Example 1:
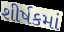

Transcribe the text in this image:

શીર્ષકમાં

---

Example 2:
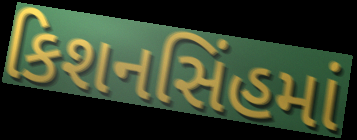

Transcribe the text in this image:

કિશનસિંહમાં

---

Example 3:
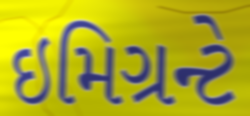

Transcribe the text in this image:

ઇમિગ્રન્ટે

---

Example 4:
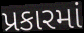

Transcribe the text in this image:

પ્રકારમાં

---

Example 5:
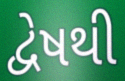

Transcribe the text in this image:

દ્વેષથી